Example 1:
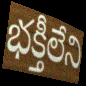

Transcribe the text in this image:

భక్తీలేని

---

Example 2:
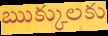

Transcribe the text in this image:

ఋక్కులకు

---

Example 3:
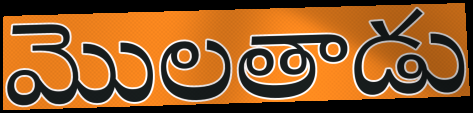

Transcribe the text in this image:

మొలతాడు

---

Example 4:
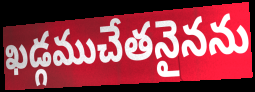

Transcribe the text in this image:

ఖడ్గముచేతనైనను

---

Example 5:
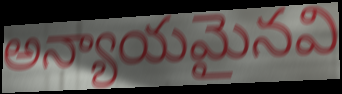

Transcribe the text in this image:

అన్యాయమైనవి